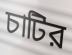
চাটির